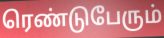
ரெண்டுபேரும்